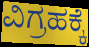
ವಿಗ್ರಹಕ್ಕೆ